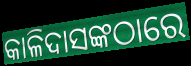
କାଳିଦାସଙ୍କଠାରେ